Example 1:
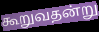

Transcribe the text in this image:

கூறுவதன்று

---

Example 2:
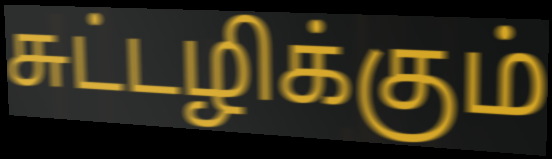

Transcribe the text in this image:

சுட்டழிக்கும்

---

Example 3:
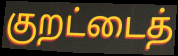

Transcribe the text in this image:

குறட்டைத்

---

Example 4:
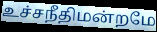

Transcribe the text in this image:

உச்சநீதிமன்றமே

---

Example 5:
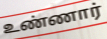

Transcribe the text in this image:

உண்ணார்